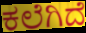
ಕಲೆಗಿದೆ